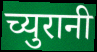
च्युरानी